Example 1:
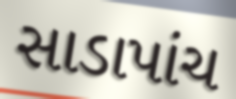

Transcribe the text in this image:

સાડાપાંચ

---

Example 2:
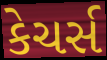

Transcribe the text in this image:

કેચર્સ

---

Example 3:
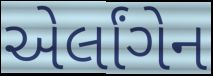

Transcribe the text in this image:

એર્લાંગેન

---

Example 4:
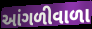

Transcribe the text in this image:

આંગળીવાળા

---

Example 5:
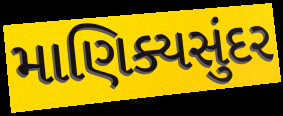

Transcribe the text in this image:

માણિક્યસુંદર